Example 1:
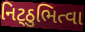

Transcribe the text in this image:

નિટ્ઠુભિત્વા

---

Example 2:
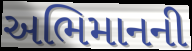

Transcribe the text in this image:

અભિમાનની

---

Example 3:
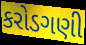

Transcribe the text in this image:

કરોડગણી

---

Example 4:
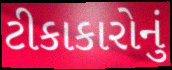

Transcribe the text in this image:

ટીકાકારોનું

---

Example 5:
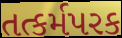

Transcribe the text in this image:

તત્કર્મપરક